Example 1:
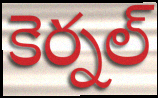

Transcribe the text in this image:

కెర్నల్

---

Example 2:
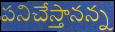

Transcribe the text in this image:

పనిచేస్తానన్న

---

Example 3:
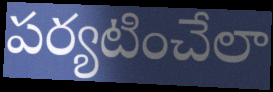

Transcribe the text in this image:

పర్యటించేలా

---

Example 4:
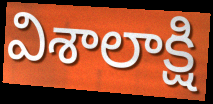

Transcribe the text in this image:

విశాలాక్షి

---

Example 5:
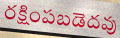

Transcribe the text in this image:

రక్షింపబడెదవు